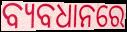
ବ୍ୟବଧାନରେ